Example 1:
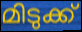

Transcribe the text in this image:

മിടുക്ക്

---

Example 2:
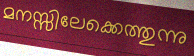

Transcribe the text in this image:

മനസ്സിലേക്കെത്തുന്നു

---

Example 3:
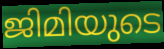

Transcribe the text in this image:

ജിമിയുടെ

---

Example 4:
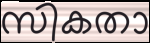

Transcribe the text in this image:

സികതാ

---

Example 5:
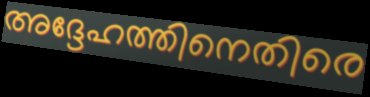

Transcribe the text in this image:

അദ്ദേഹത്തിനെതിരെ